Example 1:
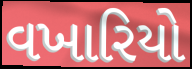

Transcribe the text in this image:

વખારિયો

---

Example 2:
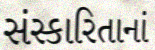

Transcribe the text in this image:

સંસ્કારિતાનાં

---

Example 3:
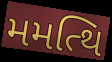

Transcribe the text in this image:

મમત્થિ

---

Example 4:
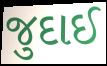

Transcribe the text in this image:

જુદાઈ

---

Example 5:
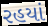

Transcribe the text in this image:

રહયાં